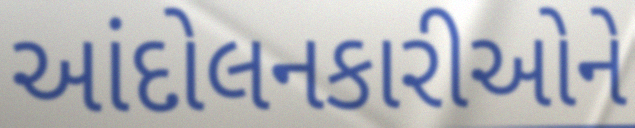
આંદોલનકારીઓને